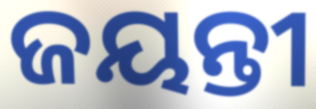
ଜୟନ୍ତୀ